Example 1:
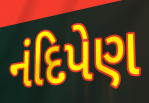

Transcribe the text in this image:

નંદિપેણ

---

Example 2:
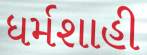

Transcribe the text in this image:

ધર્મશાહી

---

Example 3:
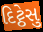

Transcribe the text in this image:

દિટ્ઠેસુ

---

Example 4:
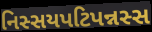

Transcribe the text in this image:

નિસ્સયપટિપન્નસ્સ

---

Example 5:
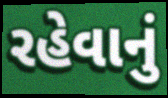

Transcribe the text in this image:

રહેવાનું